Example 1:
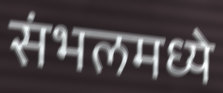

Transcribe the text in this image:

संभलमध्ये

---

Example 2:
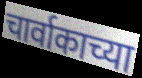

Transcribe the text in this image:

चार्वाकाच्या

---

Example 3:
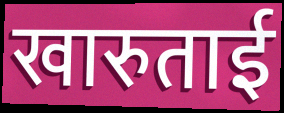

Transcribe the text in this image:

खारुताई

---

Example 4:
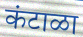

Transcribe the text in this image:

कंटाळा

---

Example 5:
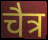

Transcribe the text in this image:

चैत्र